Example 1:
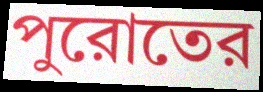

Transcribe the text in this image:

পুরোতের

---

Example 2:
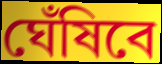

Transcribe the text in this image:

ঘেঁষিবে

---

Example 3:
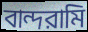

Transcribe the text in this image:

বান্দরামি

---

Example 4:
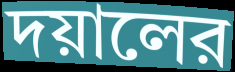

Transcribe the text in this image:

দয়ালের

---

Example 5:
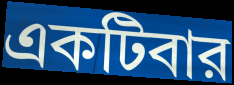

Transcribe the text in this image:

একটিবার